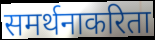
समर्थनाकरिता